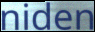
niden